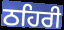
ਠਹਿਰੀ